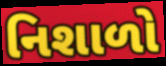
નિશાળો